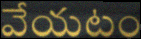
వేయటం